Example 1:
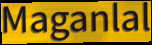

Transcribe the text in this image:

Maganlal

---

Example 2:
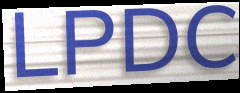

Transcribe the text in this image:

LPDC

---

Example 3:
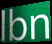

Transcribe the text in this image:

lbn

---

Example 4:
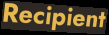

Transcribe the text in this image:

Recipient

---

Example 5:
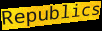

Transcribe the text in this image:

Republics